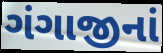
ગંગાજીનાં